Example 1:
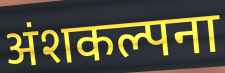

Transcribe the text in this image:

अंशकल्पना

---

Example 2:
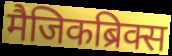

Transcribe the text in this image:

मैजिकब्रिक्स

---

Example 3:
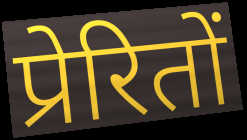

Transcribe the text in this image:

प्रेरितों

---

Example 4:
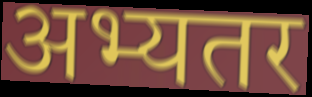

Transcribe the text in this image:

अभ्यतर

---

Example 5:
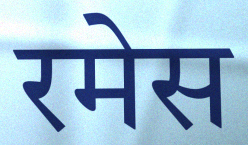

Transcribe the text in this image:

रमेस